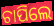
ଚାପିଲେ